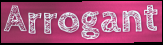
Arrogant